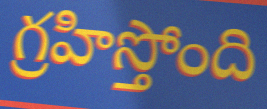
గ్రహిస్తోంది